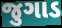
જુગાડ